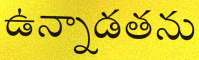
ఉన్నాడతను